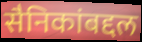
सैनिकांबद्दल